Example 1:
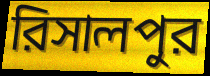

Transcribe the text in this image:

রিসালপুর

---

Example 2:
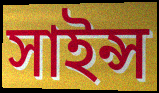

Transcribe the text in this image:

সাইন্স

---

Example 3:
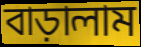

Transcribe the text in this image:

বাড়ালাম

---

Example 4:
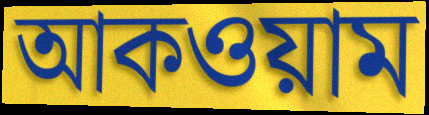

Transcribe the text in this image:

আকওয়াম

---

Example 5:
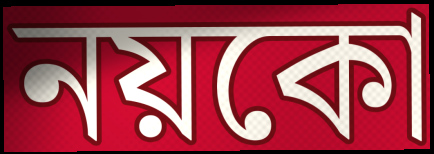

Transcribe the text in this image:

নয়কো